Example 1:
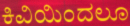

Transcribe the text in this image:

ಕಿವಿಯಿಂದಲೂ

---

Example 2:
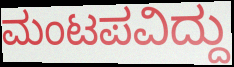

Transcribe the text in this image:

ಮಂಟಪವಿದ್ದು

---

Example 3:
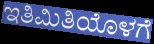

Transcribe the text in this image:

ಇತಿಮಿತಿಯೊಳಗೆ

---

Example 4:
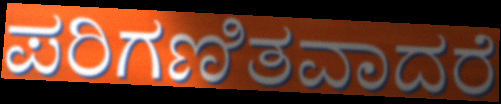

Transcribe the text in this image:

ಪರಿಗಣಿತವಾದರೆ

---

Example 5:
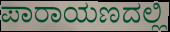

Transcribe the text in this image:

ಪಾರಾಯಣದಲ್ಲಿ